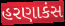
હરણાકંસ